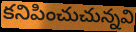
కనిపించుచున్నవి